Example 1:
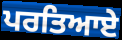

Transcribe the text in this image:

ਪਰਤਿਆਏ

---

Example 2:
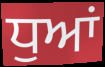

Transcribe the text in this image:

ਧੁਆਂ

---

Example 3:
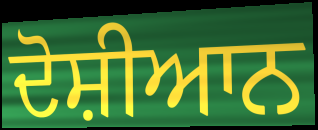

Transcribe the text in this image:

ਦੋਸ਼ੀਆਨ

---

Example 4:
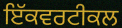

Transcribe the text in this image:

ਇੱਕਵਰਟੀਕਲ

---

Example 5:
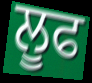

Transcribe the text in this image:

ਲੂਫ